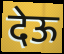
देऊ